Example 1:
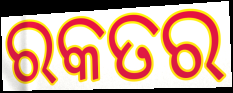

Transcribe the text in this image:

ରକତର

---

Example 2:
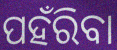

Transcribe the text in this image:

ପହଁରିବା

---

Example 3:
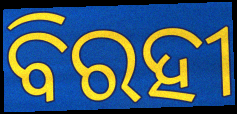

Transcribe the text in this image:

ବିରହୀ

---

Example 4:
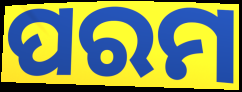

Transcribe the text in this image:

ପରମ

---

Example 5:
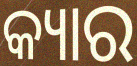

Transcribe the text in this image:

କ୍ୟାର